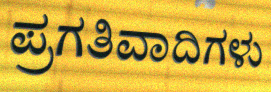
ಪ್ರಗತಿವಾದಿಗಳು